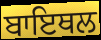
ਬਾਇਥਲ